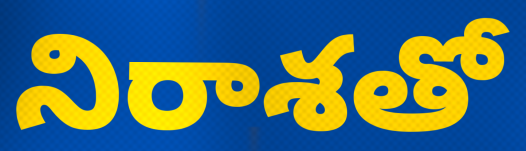
నిరాశతో